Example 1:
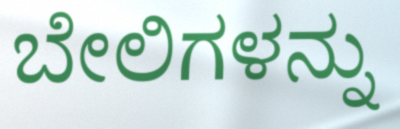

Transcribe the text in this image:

ಬೇಲಿಗಳನ್ನು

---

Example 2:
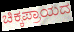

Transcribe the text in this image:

ಚಿಕ್ಕಪ್ರಾಯದ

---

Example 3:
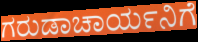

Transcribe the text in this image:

ಗರುಡಾಚಾರ್ಯನಿಗೆ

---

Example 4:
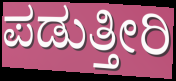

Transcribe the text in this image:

ಪಡುತ್ತೀರಿ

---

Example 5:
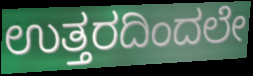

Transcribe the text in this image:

ಉತ್ತರದಿಂದಲೇ